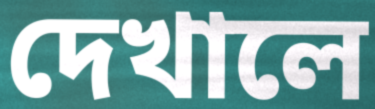
দেখালে